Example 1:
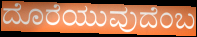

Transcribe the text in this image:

ದೊರೆಯುವುದೆಂಬ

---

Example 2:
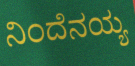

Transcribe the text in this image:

ನಿಂದೆನಯ್ಯ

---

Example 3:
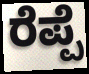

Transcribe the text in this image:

ರೆಪ್ಪೆ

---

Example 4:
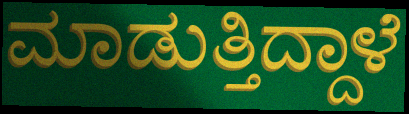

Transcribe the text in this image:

ಮಾಡುತ್ತಿದ್ದಾಳೆ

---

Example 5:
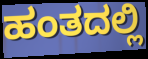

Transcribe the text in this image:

ಹಂತದಲ್ಲಿ